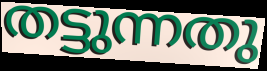
തട്ടുന്നതു